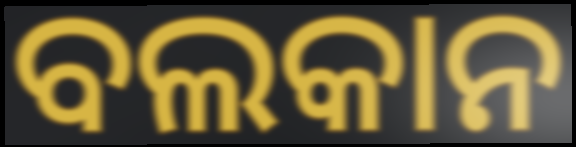
ବଲକାନ